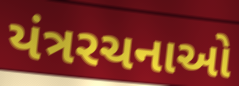
યંત્રરચનાઓ